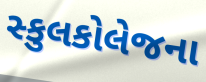
સ્કુલકોલેજના